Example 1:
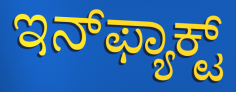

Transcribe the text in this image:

ಇನ್‌ಫ್ಯಾಕ್ಟ್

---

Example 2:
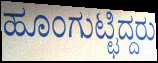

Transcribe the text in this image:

ಹೂಂಗುಟ್ಟಿದ್ದರು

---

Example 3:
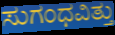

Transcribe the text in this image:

ಸುಗಂಧವಿತ್ತು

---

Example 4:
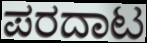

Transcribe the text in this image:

ಪರದಾಟ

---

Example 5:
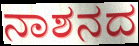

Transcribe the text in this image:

ನಾಶನದ